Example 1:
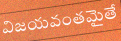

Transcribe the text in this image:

విజయవంతమైతే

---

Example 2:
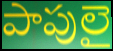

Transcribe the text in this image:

పాపులై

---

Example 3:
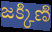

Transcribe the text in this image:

జక్కిణి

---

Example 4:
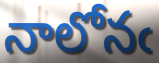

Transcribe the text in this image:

నాలోనఁ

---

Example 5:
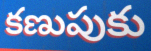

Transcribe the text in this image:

కణుపుకు